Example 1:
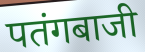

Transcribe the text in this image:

पतंगबाजी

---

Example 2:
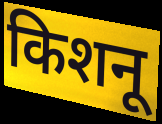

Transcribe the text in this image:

किशनू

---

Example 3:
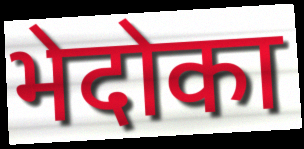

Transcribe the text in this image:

भेदोका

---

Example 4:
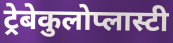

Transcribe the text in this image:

ट्रेबेकुलोप्लास्टी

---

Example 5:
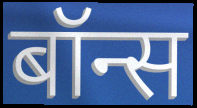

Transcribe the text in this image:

बॉन्स